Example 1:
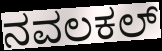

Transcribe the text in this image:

ನವಲಕಲ್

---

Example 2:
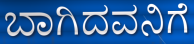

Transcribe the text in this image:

ಬಾಗಿದವನಿಗೆ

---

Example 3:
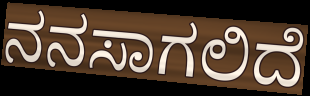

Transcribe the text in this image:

ನನಸಾಗಲಿದೆ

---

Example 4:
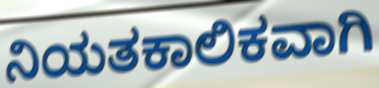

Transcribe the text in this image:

ನಿಯತಕಾಲಿಕವಾಗಿ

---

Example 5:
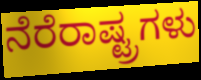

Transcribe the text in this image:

ನೆರೆರಾಷ್ಟ್ರಗಳು